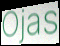
Ojas